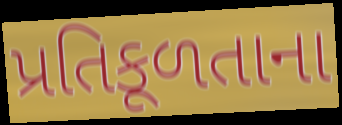
પ્રતિકૂળતાના